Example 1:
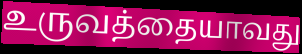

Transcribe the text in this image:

உருவத்தையாவது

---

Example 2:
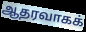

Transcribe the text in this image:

ஆதரவாகக்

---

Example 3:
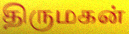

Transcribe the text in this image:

திருமகன்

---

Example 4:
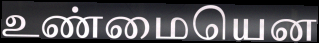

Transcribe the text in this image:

உண்மையென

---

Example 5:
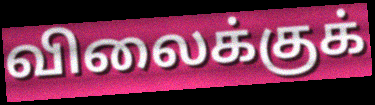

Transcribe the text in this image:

விலைக்குக்